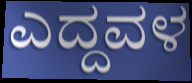
ಎದ್ದವಳ